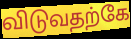
விடுவதற்கே